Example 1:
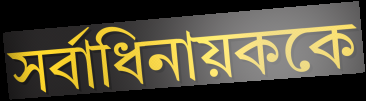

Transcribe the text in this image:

সর্বাধিনায়ককে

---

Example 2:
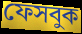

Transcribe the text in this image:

ফেসবুক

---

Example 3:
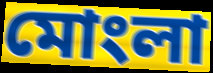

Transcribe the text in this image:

মোংলা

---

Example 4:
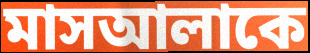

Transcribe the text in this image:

মাসআলাকে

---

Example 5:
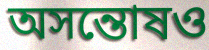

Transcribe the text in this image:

অসন্তোষও